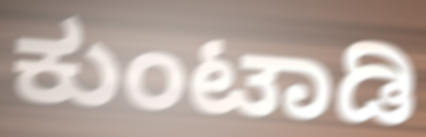
ಕುಂಟಾಡಿ